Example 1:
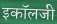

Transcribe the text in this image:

इकॉलजी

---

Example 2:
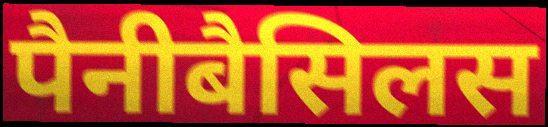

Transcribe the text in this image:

पैनीबैसिलस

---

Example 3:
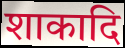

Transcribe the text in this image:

शाकादि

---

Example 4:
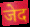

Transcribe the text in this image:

जेद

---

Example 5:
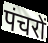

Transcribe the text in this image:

पंचरों